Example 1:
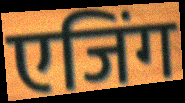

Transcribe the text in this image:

एजिंग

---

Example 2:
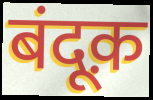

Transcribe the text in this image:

बंदूक़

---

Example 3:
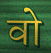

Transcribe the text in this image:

वो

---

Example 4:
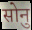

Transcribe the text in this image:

सोनु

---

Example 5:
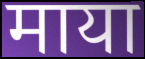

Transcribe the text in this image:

माया